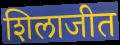
शिलाजीत